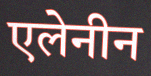
एलेनीन